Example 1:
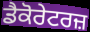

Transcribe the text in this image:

ਡੈਕੋਰੇਟਰਜ਼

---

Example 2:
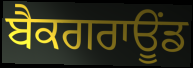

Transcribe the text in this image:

ਬੈਕਗਰਾਊਂਡ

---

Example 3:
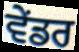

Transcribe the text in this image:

ਵੇਂਡਰ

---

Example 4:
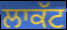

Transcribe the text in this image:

ਲਾਕੱਟ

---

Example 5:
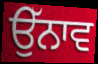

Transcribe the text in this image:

ਉੱਨਾਵ